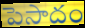
పెసాదం